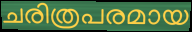
ചരിത്രപരമായ